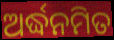
ଅର୍ଦ୍ଧନମିତ